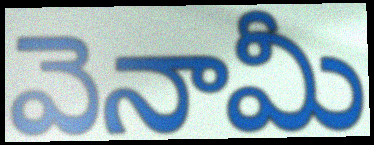
వెనామీ